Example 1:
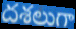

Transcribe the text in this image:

దశలుగా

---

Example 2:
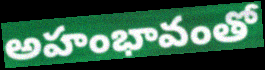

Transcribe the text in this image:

అహంభావంతో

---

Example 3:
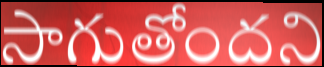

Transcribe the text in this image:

సాగుతోందని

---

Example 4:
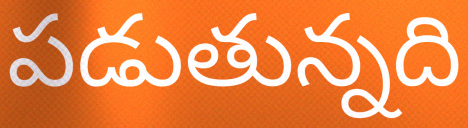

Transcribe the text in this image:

పడుతున్నది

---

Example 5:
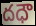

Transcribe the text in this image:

దధౌ